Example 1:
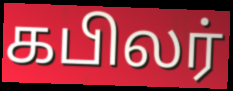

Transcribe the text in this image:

கபிலர்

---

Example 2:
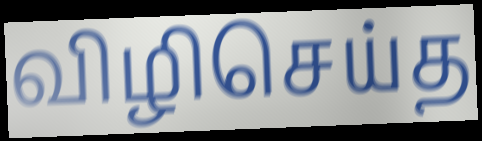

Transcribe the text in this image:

விழிசெய்த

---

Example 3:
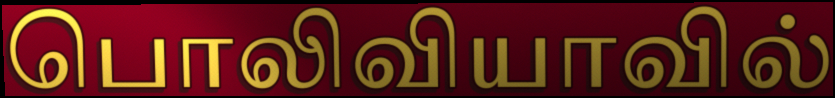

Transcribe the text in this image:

பொலிவியாவில்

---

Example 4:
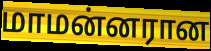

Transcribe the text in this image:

மாமன்னரான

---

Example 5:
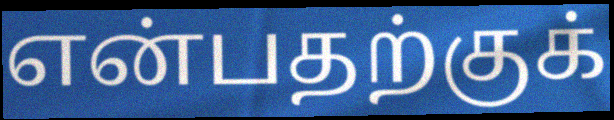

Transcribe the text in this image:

என்பதற்குக்